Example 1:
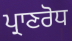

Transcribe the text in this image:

ਪ੍ਰਾਣਰੋਧ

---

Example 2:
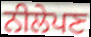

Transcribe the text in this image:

ਨੀਲੇਪਣ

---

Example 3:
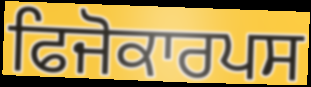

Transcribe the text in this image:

ਫਿਜੋਕਾਰਪਸ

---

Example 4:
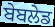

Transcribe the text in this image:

ਬੇਬਲੇਡ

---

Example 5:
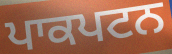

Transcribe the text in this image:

ਪਾਕਪਟਨ